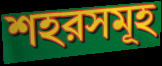
শহরসমূহ